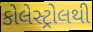
કોલેસ્ટ્રોલથી